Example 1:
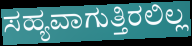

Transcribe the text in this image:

ಸಹ್ಯವಾಗುತ್ತಿರಲಿಲ್ಲ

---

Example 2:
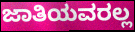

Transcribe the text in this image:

ಜಾತಿಯವರಲ್ಲ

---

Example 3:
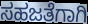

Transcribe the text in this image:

ಸಹಜತೆಗಾಗಿ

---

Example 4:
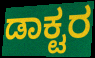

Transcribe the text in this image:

ಡಾಕ್ಟರ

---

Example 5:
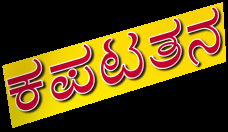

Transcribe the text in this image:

ಕಪಟತನ